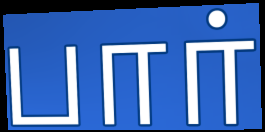
பார்